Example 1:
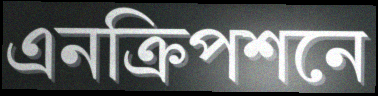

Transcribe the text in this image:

এনক্রিপশনে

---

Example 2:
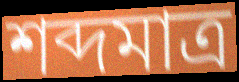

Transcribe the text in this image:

শব্দমাত্র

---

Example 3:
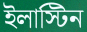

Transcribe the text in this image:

ইলাস্টিন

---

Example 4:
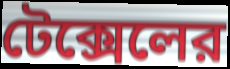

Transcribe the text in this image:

টেক্সেলের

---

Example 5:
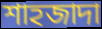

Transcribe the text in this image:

শাহজাদা